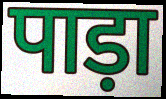
पाड़ा